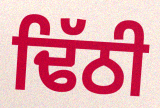
ਢਿੱਠੀ